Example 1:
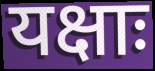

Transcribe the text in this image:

यक्षाः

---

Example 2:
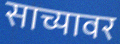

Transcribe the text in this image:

साच्यावर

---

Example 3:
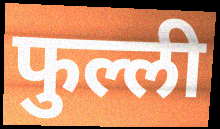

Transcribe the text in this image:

फुल्ली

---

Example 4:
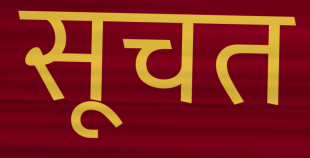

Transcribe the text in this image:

सूचत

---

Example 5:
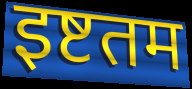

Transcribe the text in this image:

इष्टतम